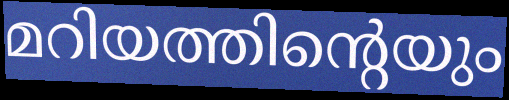
മറിയത്തിന്റെയും